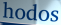
hodos